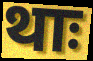
थाः